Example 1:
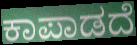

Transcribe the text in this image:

ಕಾಪಾಡದೆ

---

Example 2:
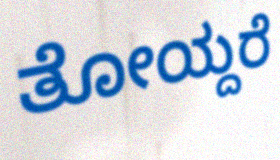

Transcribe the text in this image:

ತೋಯ್ದರೆ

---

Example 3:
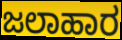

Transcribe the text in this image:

ಜಲಾಹಾರ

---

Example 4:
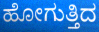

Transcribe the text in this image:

ಹೋಗುತ್ತಿದ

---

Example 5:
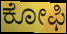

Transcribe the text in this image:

ಕೋಫಿ